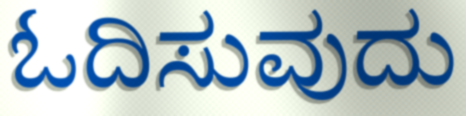
ಓದಿಸುವುದು